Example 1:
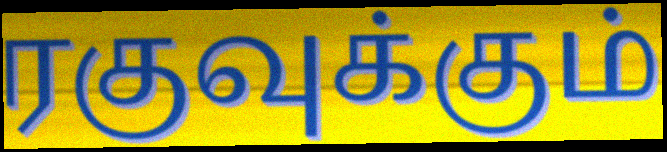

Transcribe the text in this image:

ரகுவுக்கும்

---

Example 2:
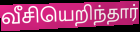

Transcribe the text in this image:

வீசியெறிந்தார்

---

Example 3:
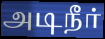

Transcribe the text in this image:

அடிநீர்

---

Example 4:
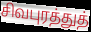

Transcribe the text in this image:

சிவபுரத்துத்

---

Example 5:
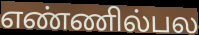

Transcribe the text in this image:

எண்ணில்பல